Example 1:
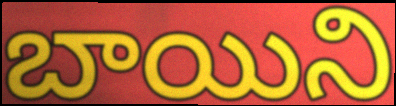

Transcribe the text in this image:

బాయిని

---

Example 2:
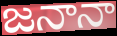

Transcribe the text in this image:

జనానా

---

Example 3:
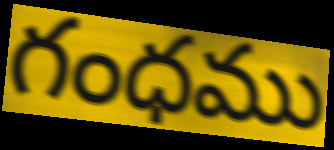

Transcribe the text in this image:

గంధము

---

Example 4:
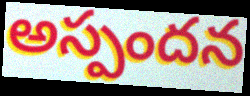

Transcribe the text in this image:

అస్పందన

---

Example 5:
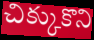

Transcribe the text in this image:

చిక్కుకొని